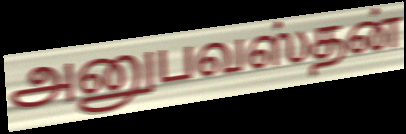
அனுபவஸ்தன்